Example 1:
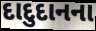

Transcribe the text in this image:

દાદુદાનના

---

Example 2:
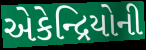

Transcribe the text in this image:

એકેન્દ્રિયોની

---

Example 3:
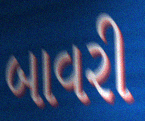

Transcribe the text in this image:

બાવરી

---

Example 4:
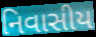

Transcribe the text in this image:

નિવાસીય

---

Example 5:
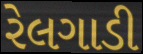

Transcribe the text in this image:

રેલગાડી